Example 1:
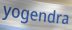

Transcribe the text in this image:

yogendra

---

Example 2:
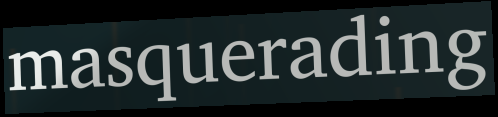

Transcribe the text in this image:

masquerading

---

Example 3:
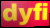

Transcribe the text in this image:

dyfi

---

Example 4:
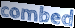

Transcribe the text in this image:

combed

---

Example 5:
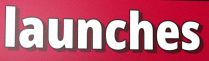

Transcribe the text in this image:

launches